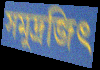
সমুদ্রজিৎ